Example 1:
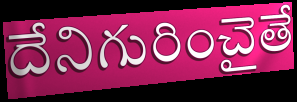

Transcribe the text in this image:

దేనిగురించైతే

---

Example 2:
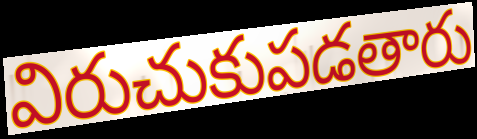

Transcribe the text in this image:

విరుచుకుపడతారు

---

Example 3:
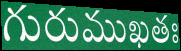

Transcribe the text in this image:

గురుముఖతః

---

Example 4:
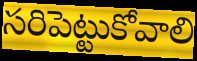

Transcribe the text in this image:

సరిపెట్టుకోవాలి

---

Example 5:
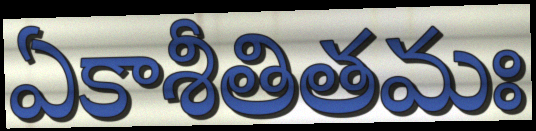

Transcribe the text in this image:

ఏకాశీతితమః